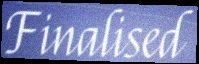
Finalised